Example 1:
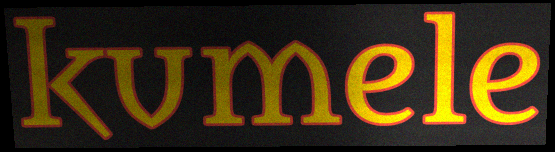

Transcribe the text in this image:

kumele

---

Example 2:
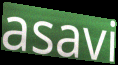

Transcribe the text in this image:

asavi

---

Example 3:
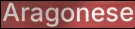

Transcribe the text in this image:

Aragonese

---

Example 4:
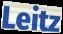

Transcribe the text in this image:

Leitz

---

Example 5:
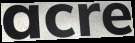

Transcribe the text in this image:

acre